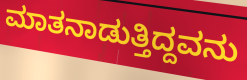
ಮಾತನಾಡುತ್ತಿದ್ದವನು